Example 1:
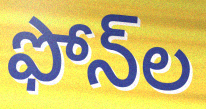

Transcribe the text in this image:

ఫోన్‌ల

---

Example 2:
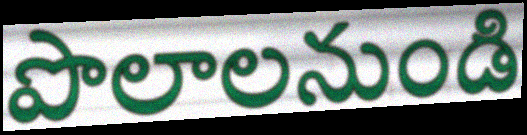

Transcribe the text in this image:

పొలాలనుండి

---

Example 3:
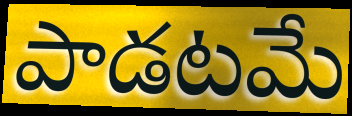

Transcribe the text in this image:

పాడటమే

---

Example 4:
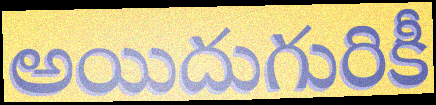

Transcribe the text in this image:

అయిదుగురికీ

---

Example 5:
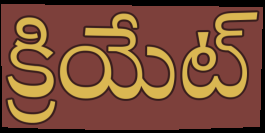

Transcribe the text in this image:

క్రియేట్